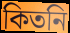
কিতনি